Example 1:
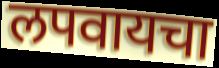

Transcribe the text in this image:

लपवायचा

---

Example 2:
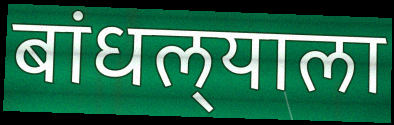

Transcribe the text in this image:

बांधल्याला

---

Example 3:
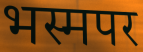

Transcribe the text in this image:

भस्मपर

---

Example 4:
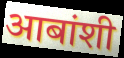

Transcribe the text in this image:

आबांशी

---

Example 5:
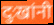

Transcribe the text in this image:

दुःखांनी